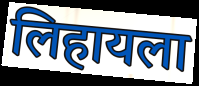
लिहायला